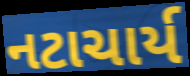
નટાચાર્ય